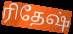
ரிதேஷ்